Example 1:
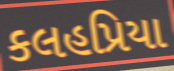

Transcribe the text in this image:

કલહપ્રિયા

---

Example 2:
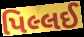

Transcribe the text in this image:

પિલ્લઈ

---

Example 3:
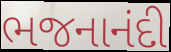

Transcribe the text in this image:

ભજનાનંદી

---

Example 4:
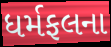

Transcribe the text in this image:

ધર્મફલના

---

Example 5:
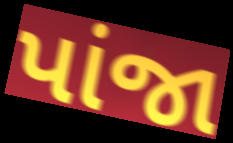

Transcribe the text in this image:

પાંજા